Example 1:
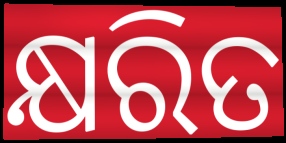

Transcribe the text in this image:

କ୍ଷରିତ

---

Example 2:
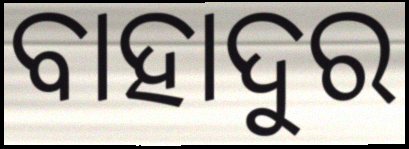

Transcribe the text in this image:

ବାହାଦୁର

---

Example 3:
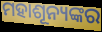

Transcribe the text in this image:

ମହାଶୂନ୍ୟଙ୍କର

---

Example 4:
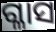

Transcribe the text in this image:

ଗ୍ଳାସ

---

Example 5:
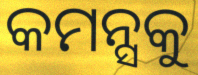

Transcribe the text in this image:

କମନ୍ସକୁ